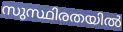
സുസ്ഥിരതയിൽ